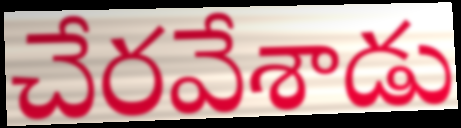
చేరవేశాడు